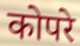
कोपरे